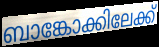
ബാങ്കോക്കിലേക്ക്